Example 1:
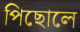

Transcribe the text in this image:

পিছোলে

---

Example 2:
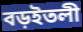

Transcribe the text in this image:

বড়ইতলী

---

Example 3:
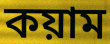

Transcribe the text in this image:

কয়াম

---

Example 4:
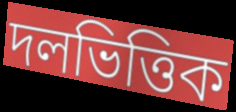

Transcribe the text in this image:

দলভিত্তিক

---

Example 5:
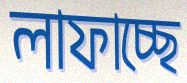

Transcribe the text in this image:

লাফাচ্ছে